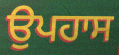
ਉਪਹਾਸ